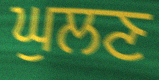
ਘੁਲਣ